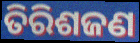
ତିରିଶଜଣ